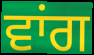
ਵਾਂਗ